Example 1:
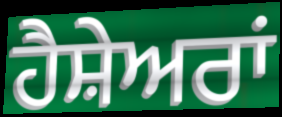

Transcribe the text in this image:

ਹੈਸ਼ੇਅਰਾਂ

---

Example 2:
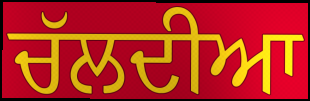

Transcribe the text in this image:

ਚੱਲਦੀਆ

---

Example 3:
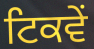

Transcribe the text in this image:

ਟਿਕਵੇਂ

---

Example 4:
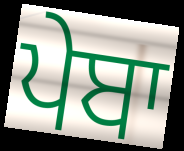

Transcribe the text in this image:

ਪੇਬਾ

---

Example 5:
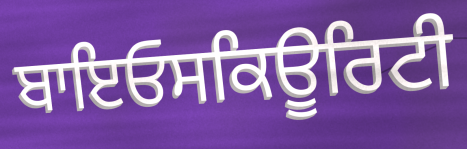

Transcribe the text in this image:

ਬਾਇਓਸਕਿਊਰਿਟੀ